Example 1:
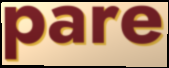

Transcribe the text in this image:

pare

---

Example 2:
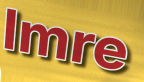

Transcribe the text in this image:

Imre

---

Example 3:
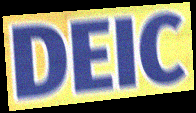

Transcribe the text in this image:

DEIC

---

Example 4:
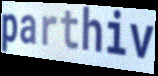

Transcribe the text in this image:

parthiv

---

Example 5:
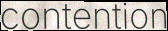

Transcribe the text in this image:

contention